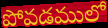
పోవడములో